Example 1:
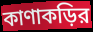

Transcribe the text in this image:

কাণাকড়ির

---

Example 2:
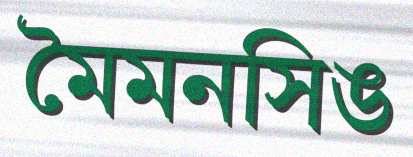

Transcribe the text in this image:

মৈমনসিঙ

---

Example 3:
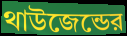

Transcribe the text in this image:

থাউজেন্ডের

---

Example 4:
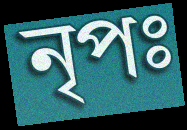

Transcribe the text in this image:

নৃপঃ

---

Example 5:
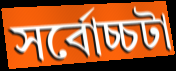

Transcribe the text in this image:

সর্বোচ্চটা